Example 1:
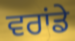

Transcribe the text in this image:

ਵਰਾਂਡੇ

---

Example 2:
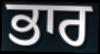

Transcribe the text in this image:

ਭਾਰ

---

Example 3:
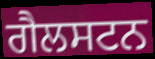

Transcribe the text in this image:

ਗੈਲਸਟਨ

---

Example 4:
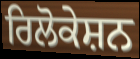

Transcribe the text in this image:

ਰਿਲੋਕੇਸ਼ਨ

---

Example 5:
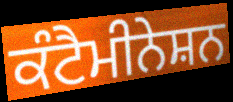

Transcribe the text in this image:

ਕੰਟੈਮੀਨੇਸ਼ਨ